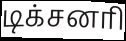
டிக்சனரி